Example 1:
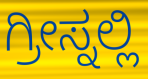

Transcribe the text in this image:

ಗ್ರೀಸ್ನಲ್ಲಿ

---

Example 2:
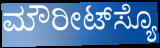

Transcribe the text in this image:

ಮೌರೀಟ್‌ಸ್ಯೊ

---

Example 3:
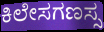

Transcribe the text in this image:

ಕಿಲೇಸಗಣಸ್ಸ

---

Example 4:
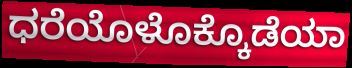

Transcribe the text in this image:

ಧರೆಯೊಳೊಕ್ಕೊಡೆಯಾ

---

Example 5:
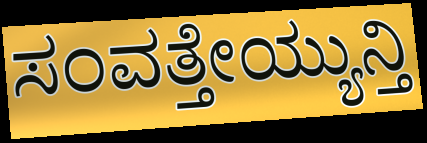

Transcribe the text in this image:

ಸಂವತ್ತೇಯ್ಯುನ್ತಿ